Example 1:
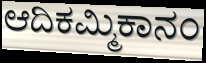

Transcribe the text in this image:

ಆದಿಕಮ್ಮಿಕಾನಂ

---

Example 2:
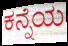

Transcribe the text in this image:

ಕನ್ನೆಯ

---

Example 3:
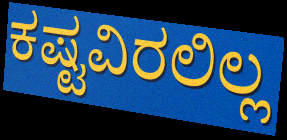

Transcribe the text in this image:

ಕಷ್ಟವಿರಲಿಲ್ಲ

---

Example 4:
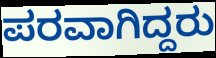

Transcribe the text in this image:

ಪರವಾಗಿದ್ದರು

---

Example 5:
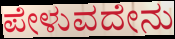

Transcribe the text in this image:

ಪೇಳುವದೇನು